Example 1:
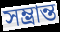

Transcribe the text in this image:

সম্ভ্ৰান্ত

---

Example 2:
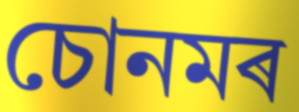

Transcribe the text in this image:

চোনমৰ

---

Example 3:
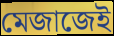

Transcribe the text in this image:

মেজাজেই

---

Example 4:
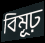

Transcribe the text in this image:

বিমূঢ়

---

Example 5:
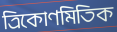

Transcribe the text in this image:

ত্ৰিকোণমিতিক